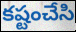
కష్టంచేసి